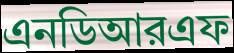
এনডিআরএফ